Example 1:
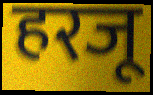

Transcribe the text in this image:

हरजू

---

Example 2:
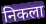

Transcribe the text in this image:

निकला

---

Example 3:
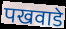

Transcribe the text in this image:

पखवाडे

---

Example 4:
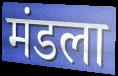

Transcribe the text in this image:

मंडला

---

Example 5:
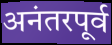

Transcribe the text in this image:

अनंतरपूर्व